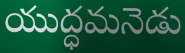
యుద్ధమనెడు